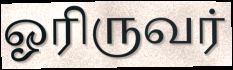
ஓரிருவர்